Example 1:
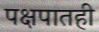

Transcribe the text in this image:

पक्षपातही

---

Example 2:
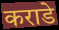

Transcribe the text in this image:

कराडे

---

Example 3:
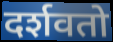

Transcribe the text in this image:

दर्शवतो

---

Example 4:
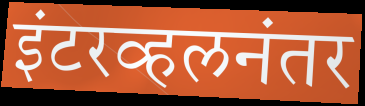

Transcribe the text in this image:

इंटरव्हलनंतर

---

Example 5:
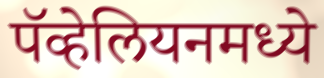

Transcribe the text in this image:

पॅव्हेलियनमध्ये